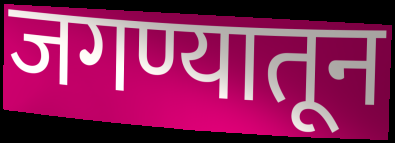
जगण्यातून